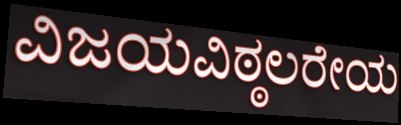
ವಿಜಯವಿಠ್ಠಲರೇಯ